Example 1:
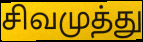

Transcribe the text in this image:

சிவமுத்து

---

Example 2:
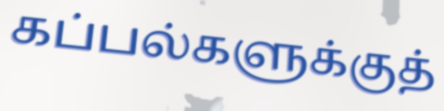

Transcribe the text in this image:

கப்பல்களுக்குத்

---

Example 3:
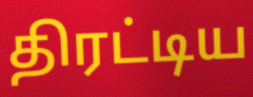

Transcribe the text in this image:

திரட்டிய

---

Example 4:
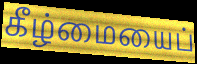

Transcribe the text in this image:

கீழ்மையைப்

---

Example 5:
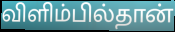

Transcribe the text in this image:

விளிம்பில்தான்